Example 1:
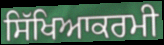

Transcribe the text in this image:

ਸਿੱਖਿਆਕਰਮੀ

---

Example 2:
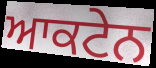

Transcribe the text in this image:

ਆਕਟੇਨ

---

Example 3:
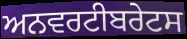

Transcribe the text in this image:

ਅਨਵਰਟੀਬਰੇਟਸ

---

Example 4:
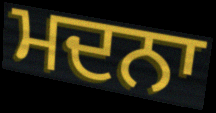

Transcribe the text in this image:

ਮਦਨਾ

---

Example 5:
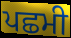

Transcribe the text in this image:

ਪਛਮੀ